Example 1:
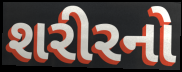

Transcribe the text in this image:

શરીરનો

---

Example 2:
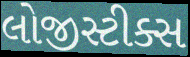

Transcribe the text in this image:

લોજીસ્ટીક્સ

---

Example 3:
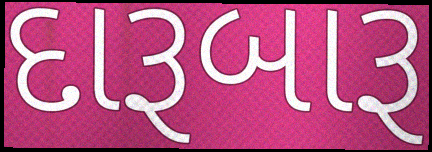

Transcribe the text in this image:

દારૂબારૂ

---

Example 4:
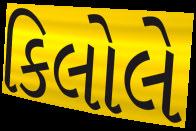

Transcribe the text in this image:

કિલોલે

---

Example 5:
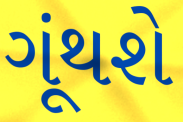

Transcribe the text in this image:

ગૂંથશે